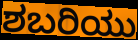
ಶಬರಿಯು